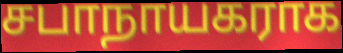
சபாநாயகராக